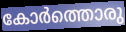
കോർത്തൊരു